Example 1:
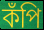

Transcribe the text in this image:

কঁপি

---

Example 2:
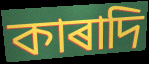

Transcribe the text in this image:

কাৰাদি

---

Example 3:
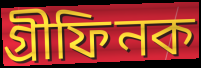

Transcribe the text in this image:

গ্ৰীফিনক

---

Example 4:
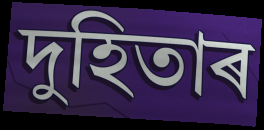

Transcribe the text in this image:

দুহিতাৰ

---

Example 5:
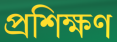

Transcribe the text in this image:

প্ৰশিক্ষণ